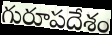
గురూపదేశం